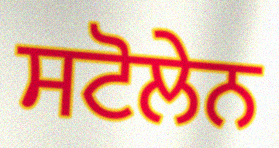
ਸਟੋਲੇਨ